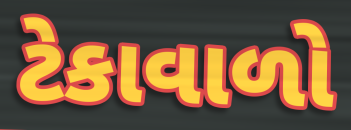
ટેકાવાળો